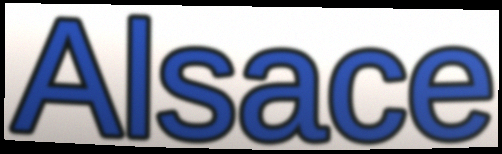
Alsace